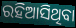
ରହିଆସିଥିବା